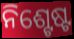
ନିଶ୍ଟେଷ୍ଟ